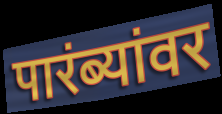
पारंब्यांवर